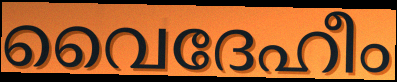
വൈദേഹീം